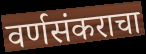
वर्णसंकराचा